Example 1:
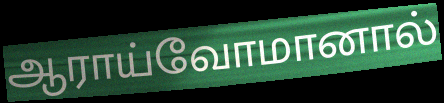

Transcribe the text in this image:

ஆராய்வோமானால்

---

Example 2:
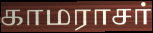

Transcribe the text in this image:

காமராசர்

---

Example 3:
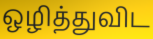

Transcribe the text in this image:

ஒழித்துவிட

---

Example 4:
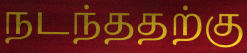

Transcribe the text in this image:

நடந்ததற்கு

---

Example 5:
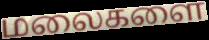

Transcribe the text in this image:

மலைகளை